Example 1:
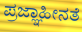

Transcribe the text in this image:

ಪ್ರಜ್ಞಾಹೀನತೆ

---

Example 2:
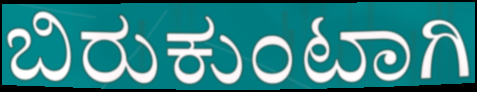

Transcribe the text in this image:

ಬಿರುಕುಂಟಾಗಿ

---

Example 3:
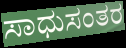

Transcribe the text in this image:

ಸಾಧುಸಂತರ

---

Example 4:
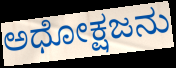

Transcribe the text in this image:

ಅಧೋಕ್ಷಜನು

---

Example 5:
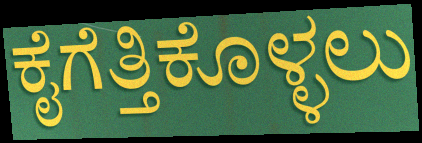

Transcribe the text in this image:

ಕೈಗೆತ್ತಿಕೊಳ್ಳಲು